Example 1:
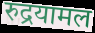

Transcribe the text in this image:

रुद्रयामल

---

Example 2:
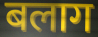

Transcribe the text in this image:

बलाग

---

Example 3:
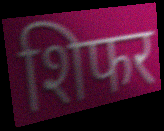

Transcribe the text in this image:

शिफर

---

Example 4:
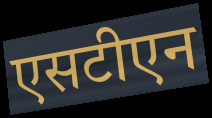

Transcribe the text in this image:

एसटीएन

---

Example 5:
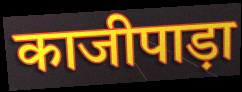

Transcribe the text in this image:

काजीपाड़ा